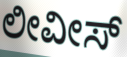
ಲೀವೀಸ್